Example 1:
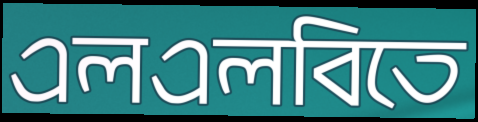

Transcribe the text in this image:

এলএলবিতে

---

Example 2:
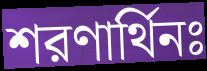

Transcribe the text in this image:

শরণার্থিনঃ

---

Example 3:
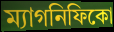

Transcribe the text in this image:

ম্যাগনিফিকো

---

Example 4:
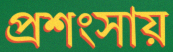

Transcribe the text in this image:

প্রশংসায়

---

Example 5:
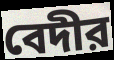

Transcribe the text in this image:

বেদীর